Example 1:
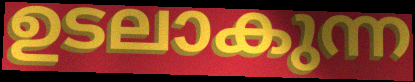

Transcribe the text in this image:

ഉടലാകുന്ന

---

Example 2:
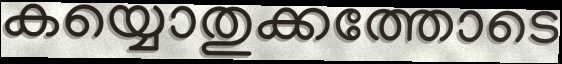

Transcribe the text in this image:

കയ്യൊതുക്കത്തോടെ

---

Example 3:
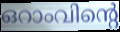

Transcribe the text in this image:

ഒറാംവിന്റെ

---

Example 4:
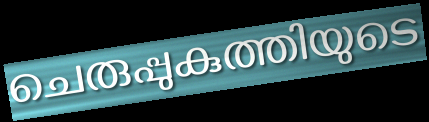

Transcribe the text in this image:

ചെരുപ്പുകുത്തിയുടെ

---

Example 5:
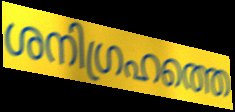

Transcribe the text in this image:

ശനിഗ്രഹത്തെ